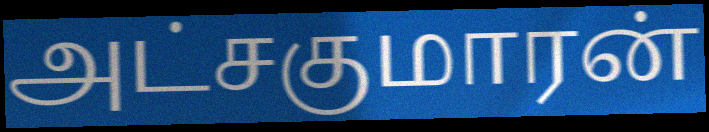
அட்சகுமாரன்